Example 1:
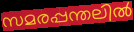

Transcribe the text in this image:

സമരപ്പന്തലിൽ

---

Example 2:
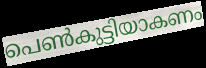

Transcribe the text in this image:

പെൺകുട്ടിയാകണം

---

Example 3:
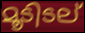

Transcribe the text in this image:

മൂടിടല്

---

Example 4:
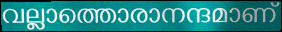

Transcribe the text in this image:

വല്ലാത്തൊരാനന്ദമാണ്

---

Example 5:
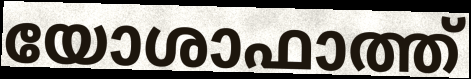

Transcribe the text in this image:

യോശാഫാത്ത്